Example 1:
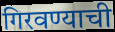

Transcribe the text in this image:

गिरवण्याची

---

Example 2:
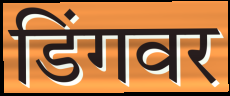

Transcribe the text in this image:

डिंगवर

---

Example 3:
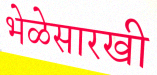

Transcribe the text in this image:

भेळेसारखी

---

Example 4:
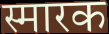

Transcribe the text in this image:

स्मारक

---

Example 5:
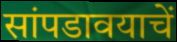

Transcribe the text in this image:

सांपडावयाचें